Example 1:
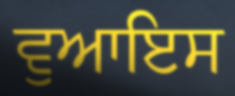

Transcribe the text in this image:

ਵੁਆਇਸ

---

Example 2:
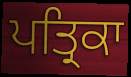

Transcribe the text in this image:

ਪਤ੍ਰਿਕਾ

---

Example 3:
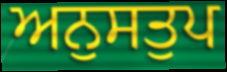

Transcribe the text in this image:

ਅਨੁਸਤੁਪ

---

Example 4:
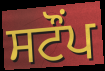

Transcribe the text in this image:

ਸਟੌਂਪ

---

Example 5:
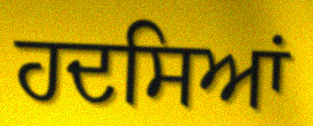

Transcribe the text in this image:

ਹਦਸਿਆਂ